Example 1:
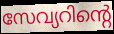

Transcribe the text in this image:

സേവ്യറിന്റെ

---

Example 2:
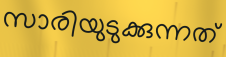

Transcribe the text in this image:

സാരിയുടുക്കുന്നത്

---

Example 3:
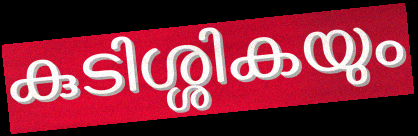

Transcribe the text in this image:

കുടിശ്ശികയും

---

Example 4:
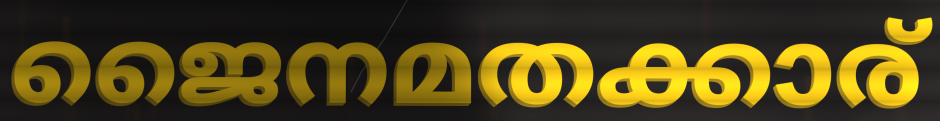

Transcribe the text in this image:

ജൈനമതക്കാര്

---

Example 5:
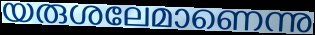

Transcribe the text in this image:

യരുശലേമാണെന്നു